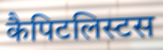
कैपिटलिस्टस